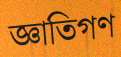
জ্ঞাতিগণ